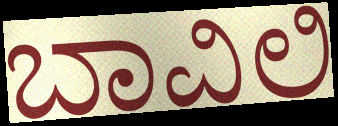
ಬಾವಿಲಿ